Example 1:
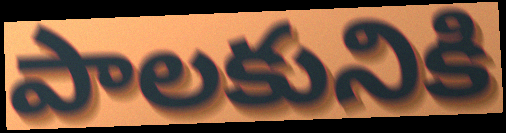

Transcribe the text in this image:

పాలకునికి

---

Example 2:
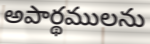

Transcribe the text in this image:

అపార్థములను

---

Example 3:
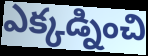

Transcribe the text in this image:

ఎక్కడ్నించి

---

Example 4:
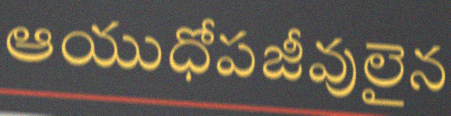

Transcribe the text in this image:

ఆయుధోపజీవులైన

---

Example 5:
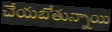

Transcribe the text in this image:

చేయబోతున్నాయి